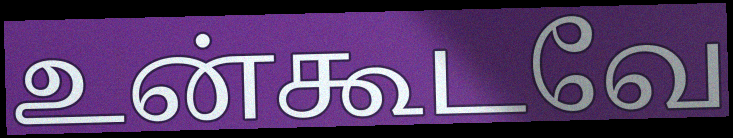
உன்கூடவே